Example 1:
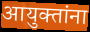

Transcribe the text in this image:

आयुक्‍तांना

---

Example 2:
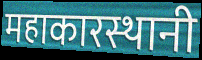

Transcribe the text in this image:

महाकारस्थानी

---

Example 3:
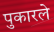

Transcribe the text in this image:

पुकारले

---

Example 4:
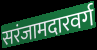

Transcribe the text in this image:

सरंजामदारवर्ग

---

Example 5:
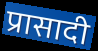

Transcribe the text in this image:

प्रासादी